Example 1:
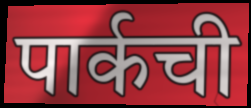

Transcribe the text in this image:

पार्कची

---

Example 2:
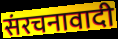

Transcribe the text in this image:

संरचनावादी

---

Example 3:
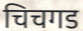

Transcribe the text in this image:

चिचगड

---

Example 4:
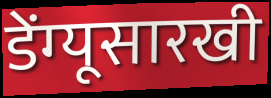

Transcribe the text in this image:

डेंग्यूसारखी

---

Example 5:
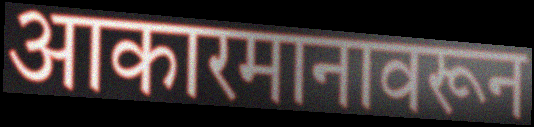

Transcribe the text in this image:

आकारमानावरून